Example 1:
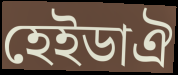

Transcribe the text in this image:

হেইডাঐ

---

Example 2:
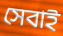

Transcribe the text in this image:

সেবাই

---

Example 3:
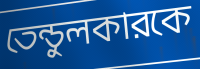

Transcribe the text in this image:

তেন্ডুলকারকে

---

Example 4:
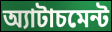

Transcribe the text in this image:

অ্যাটাচমেন্ট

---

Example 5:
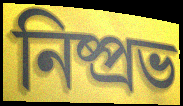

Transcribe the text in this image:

নিষ্প্রভ